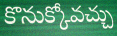
కొనుక్కోవచ్చు